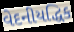
વેદનીયદ્ધિક